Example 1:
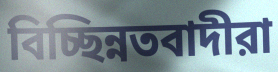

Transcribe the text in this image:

বিচ্ছিন্নতবাদীরা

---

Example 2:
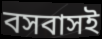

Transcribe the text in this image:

বসবাসই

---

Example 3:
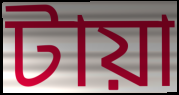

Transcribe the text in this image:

টায়া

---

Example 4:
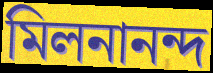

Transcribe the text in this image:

মিলনানন্দ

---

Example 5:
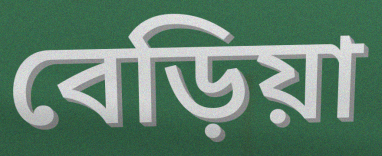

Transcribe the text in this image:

বেড়িয়া